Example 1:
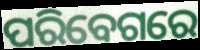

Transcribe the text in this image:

ପରିବେଗରେ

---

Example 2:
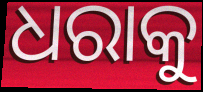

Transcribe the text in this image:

ଧରାକୁ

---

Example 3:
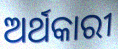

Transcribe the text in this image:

ଅର୍ଥକାରୀ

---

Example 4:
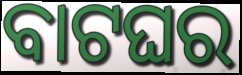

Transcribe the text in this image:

ବାଟଘର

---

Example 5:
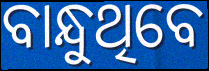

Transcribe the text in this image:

ବାନ୍ଧୁଥିବେ